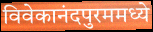
विवेकानंदपुरममध्ये